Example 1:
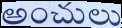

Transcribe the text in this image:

అంచులు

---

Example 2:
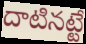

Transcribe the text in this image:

దాటినట్టే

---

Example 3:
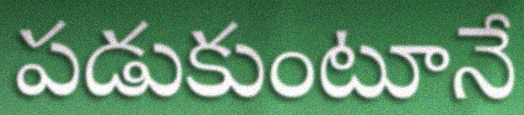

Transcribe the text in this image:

పడుకుంటూనే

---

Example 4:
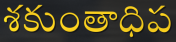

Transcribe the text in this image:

శకుంతాధిప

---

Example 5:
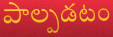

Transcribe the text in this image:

పాల్పడటం